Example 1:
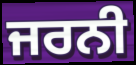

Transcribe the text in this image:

ਜਰਨੀ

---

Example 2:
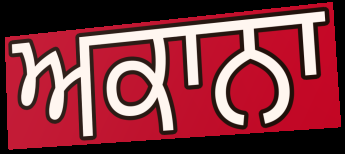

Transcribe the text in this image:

ਅਕਾਨਾ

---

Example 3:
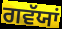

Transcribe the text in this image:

ਗਵੱਯਾਂ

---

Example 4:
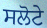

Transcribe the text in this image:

ਸਲੋਟੇ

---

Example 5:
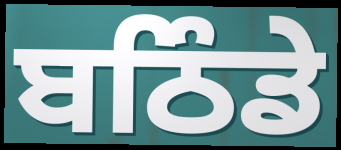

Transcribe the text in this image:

ਬਠਿੰਡੇ